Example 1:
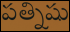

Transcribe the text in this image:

పత్నిషు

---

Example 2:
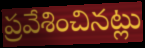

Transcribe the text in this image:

ప్రవేశించినట్లు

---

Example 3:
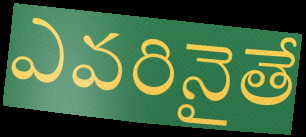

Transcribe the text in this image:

ఎవరినైతే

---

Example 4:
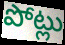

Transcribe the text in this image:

పోట్లు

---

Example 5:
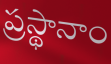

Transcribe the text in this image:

ప్రస్థానాం